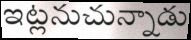
ఇట్లనుచున్నాడు